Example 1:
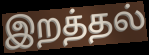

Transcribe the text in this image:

இறத்தல்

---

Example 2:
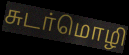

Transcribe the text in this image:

சுடர்மொழி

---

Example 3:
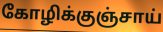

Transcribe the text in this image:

கோழிக்குஞ்சாய்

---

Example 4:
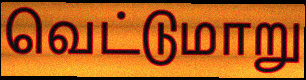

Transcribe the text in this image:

வெட்டுமாறு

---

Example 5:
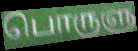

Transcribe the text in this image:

பொருளு